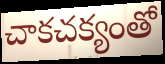
చాకచక్యంతో